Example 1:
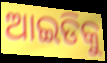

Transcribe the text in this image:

ଆଇଡିକୁ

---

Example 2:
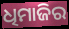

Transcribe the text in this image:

ଧିମାଜିର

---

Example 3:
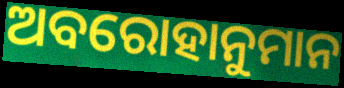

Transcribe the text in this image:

ଅବରୋହାନୁମାନ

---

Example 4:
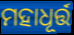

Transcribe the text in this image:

ମହାଧୂର୍ତ୍ତ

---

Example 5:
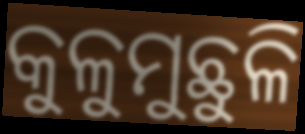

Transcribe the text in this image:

କୁଳୁମୁଛୁଳି